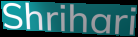
Shrihari